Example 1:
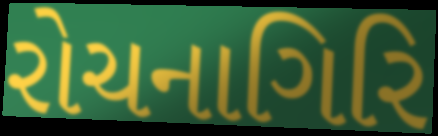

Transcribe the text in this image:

રોચનાગિરિ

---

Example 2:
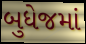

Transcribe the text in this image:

બુધેજમાં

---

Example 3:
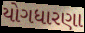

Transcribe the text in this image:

યોગધારણા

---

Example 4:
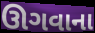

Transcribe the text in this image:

ઊગવાના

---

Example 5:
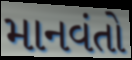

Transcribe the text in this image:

માનવંતો